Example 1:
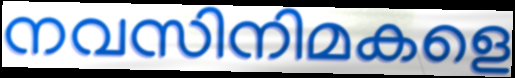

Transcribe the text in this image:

നവസിനിമകളെ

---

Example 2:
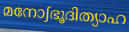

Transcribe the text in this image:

മനോഽഭൂദിത്യാഹ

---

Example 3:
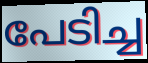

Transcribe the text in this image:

പേടിച്ച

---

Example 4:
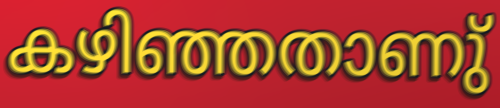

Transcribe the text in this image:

കഴിഞ്ഞതാണു്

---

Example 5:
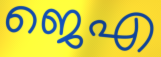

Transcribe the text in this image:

ജെഎ